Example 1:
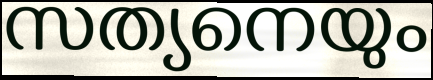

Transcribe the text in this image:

സത്യനെയും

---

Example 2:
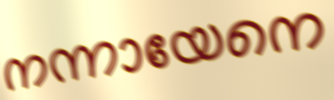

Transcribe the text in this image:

നന്നായേനെ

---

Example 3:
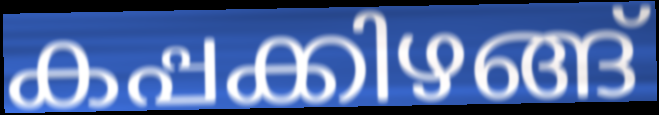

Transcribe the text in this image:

കപ്പക്കിഴങ്ങ്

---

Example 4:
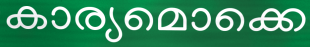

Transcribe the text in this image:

കാര്യമൊക്കെ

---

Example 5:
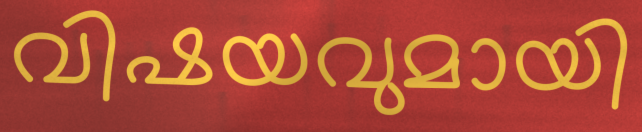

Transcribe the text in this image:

വിഷയവുമായി